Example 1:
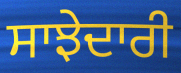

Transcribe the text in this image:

ਸਾਝੇਦਾਰੀ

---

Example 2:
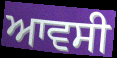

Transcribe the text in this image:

ਆਵਸੀ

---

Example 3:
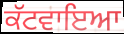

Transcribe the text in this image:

ਕੱਟਵਾਇਆ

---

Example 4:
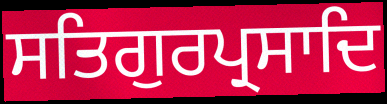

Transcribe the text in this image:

ਸਤਿਗੁਰਪ੍ਰਸਾਦਿ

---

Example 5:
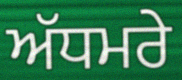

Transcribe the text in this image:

ਅੱਧਮਰੇ